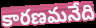
కారణమనేది